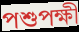
পশুপক্ষী